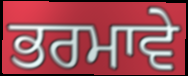
ਭਰਮਾਵੇ